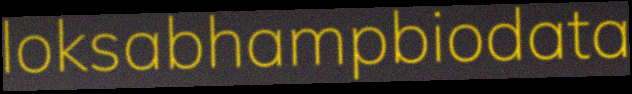
loksabhampbiodata